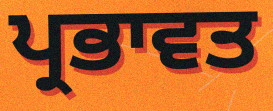
ਪ੍ਰਭਾਵਤ